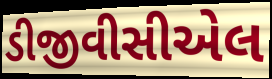
ડીજીવીસીએલ